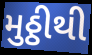
મુઠ્ઠીથી